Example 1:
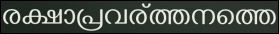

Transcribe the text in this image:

രക്ഷാപ്രവര്ത്തനത്തെ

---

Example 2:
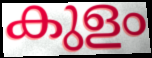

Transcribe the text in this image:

കുളം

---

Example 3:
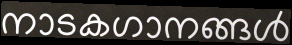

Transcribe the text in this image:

നാടകഗാനങ്ങൾ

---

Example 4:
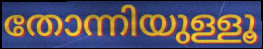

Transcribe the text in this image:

തോന്നിയുള്ളൂ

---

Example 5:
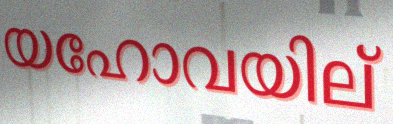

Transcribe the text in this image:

യഹോവയില്